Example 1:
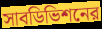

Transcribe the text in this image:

সাবডিভিশনের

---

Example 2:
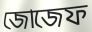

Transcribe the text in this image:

জোজেফ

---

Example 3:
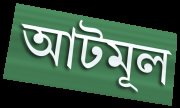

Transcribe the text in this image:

আটমূল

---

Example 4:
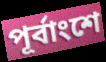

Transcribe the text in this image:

পূর্বাংশে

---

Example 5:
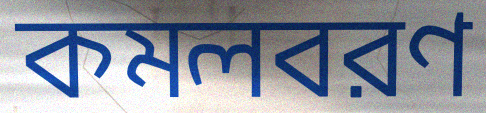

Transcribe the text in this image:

কমলবরণ